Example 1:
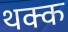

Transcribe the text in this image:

थक्क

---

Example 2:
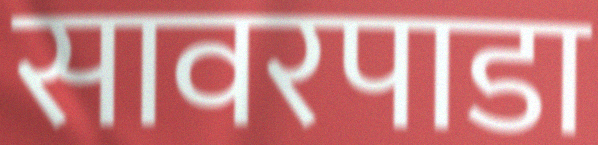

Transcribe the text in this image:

सावरपाडा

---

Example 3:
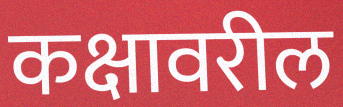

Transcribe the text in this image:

कक्षावरील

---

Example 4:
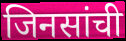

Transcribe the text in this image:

जिनसांची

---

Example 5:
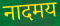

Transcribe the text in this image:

नादमय